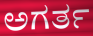
ಅಗರ್ತ